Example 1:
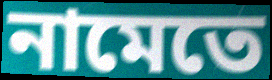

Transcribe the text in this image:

নামেতে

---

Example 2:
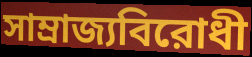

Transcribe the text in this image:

সাম্রাজ্যবিরোধী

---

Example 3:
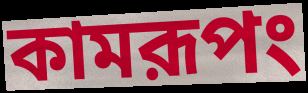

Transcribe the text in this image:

কামরূপং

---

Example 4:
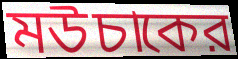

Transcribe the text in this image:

মউচাকের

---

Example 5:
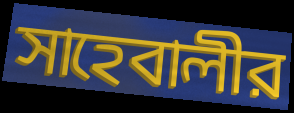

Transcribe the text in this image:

সাহেবালীর